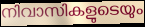
നിവാസികളുടെയും